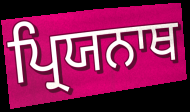
ਪ੍ਰਿਯਨਾਥ